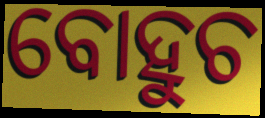
ବୋହୁଚ